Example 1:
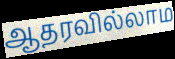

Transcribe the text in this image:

ஆதரவில்லாம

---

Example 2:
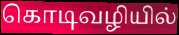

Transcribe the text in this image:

கொடிவழியில்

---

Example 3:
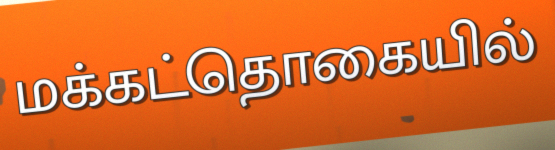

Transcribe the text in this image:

மக்கட்தொகையில்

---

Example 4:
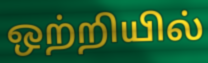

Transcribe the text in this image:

ஒற்றியில்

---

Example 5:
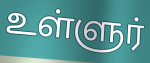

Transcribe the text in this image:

உள்ளுர்